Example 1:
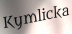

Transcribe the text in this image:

Kymlicka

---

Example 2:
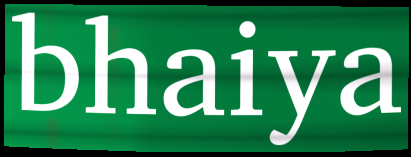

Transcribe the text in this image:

bhaiya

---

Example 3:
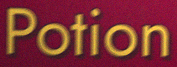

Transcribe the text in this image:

Potion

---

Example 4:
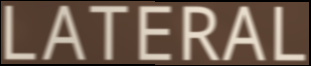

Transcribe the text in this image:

LATERAL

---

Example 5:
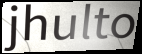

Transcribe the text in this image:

jhulto